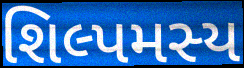
શિલ્પમસ્ય